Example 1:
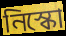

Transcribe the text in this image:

নিস্কো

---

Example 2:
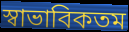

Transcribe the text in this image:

স্বাভাবিকতম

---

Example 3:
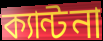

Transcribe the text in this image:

ক্যান্টনা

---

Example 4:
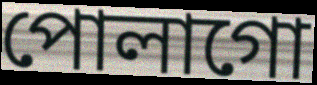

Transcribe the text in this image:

পোলাগো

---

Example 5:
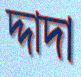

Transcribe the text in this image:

দ্দাদা